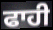
ਫਾਹੀ